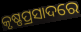
କୃଷ୍ଣପ୍ରସାଦରେ